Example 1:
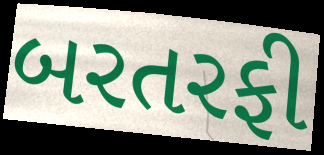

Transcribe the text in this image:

બરતરફી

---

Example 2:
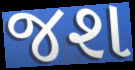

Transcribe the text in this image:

જશ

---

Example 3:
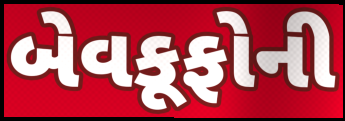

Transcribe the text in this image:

બેવકૂફોની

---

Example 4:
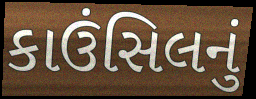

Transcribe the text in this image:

કાઉંસિલનું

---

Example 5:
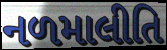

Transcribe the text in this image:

નળમાલીતિ